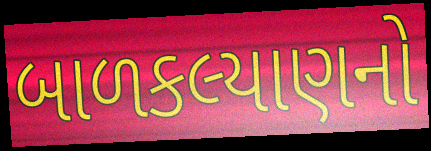
બાળકલ્યાણનો